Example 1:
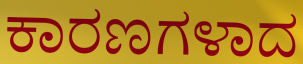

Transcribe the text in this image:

ಕಾರಣಗಳಾದ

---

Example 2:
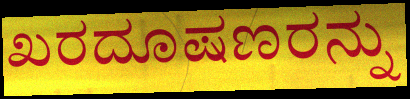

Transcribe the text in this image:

ಖರದೂಷಣರನ್ನು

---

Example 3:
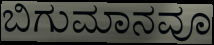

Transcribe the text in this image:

ಬಿಗುಮಾನವೂ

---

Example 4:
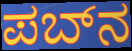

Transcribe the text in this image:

ಪಬ್‌ನ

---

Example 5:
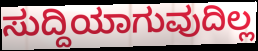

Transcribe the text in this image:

ಸುದ್ದಿಯಾಗುವುದಿಲ್ಲ